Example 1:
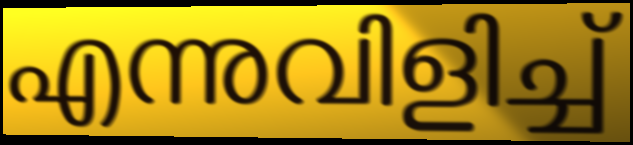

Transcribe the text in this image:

എന്നുവിളിച്ച്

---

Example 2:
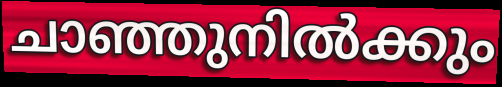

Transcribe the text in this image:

ചാഞ്ഞുനിൽക്കും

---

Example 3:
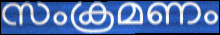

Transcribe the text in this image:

സംക്രമണം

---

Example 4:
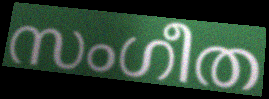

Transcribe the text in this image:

സംഗീത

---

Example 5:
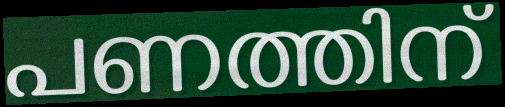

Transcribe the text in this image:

പണത്തിന്